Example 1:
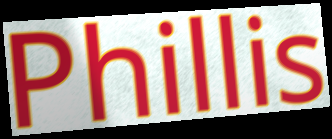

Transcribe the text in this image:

Phillis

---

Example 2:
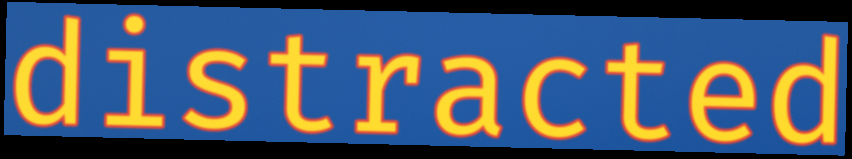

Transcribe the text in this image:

distracted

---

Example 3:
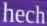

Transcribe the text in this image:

hech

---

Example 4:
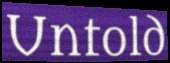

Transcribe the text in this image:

Untold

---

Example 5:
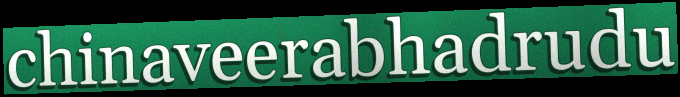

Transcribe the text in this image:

chinaveerabhadrudu